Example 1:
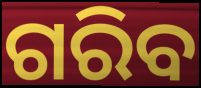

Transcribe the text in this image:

ଗରିବ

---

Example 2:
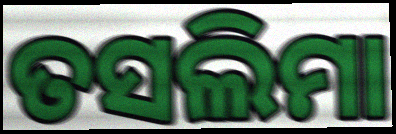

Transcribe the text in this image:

ତସଲିମା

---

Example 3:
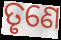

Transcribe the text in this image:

ତୃଣେ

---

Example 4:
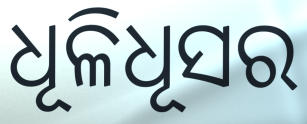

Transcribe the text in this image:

ଧୂଳିଧୂସର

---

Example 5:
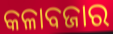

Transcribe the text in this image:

କଳାବଜାର